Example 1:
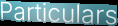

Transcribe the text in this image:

Particulars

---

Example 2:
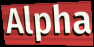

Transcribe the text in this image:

Alpha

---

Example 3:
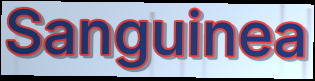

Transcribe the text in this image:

Sanguinea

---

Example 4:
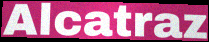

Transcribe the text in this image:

Alcatraz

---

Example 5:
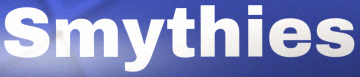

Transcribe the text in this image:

Smythies